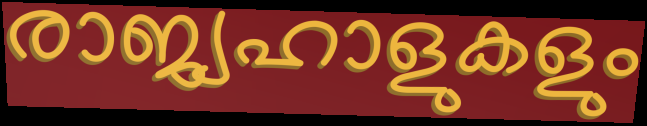
രാജ്യഹാളുകളും